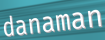
danaman